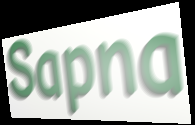
Sapna